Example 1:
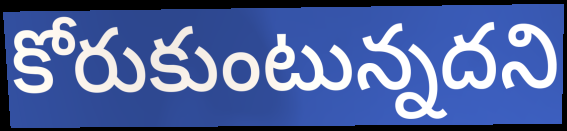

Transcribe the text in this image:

కోరుకుంటున్నదని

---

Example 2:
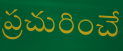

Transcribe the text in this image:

ప్రచురించే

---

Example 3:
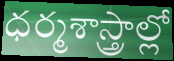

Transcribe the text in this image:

ధర్మశాస్త్రాల్లో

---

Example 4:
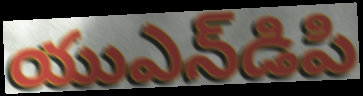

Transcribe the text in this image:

యుఎన్‌డిపి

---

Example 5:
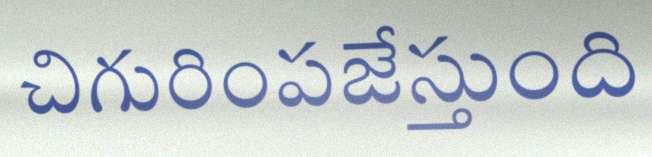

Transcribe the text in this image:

చిగురింపజేస్తుంది